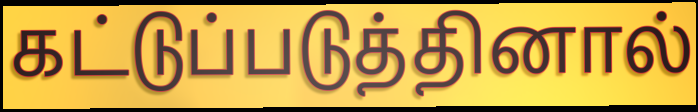
கட்டுப்படுத்தினால்